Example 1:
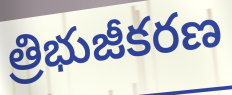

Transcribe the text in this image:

త్రిభుజీకరణ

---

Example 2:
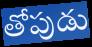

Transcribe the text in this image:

తోపుడు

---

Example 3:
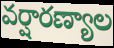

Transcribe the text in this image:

వర్షారణ్యాల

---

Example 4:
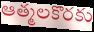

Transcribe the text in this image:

ఆత్మలకొరకు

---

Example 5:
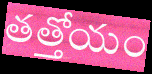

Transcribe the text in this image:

తత్తోయం